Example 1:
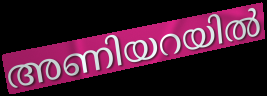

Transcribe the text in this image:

അണിയറയിൽ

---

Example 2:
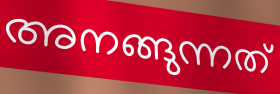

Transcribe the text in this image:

അനങ്ങുന്നത്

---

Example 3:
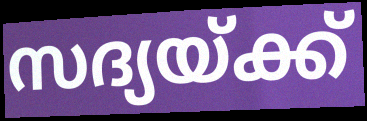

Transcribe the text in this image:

സദ്യയ്ക്ക്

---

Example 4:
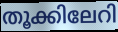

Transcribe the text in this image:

തൂക്കിലേറി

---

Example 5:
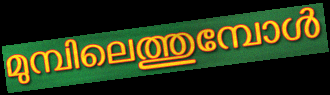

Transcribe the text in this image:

മുമ്പിലെത്തുമ്പോൾ